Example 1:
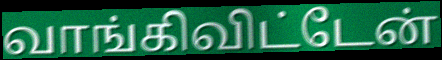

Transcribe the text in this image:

வாங்கிவிட்டேன்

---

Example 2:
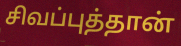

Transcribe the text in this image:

சிவப்புத்தான்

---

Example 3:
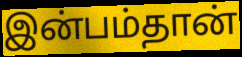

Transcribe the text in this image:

இன்பம்தான்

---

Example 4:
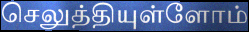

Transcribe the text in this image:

செலுத்தியுள்ளோம்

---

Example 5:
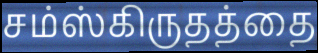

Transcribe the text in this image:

சம்ஸ்கிருதத்தை